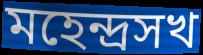
মহেন্দ্রসখ